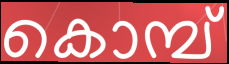
കൊമ്പ്